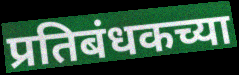
प्रतिबंधकच्या